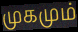
முகமும்